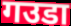
गउडा